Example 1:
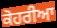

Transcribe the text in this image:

ਕੋਹਰੀਆ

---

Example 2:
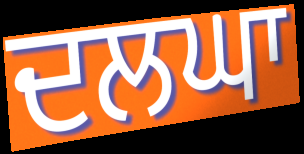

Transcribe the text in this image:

ਦਲਘਾ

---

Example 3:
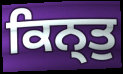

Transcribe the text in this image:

ਕਿਨ੍ਤੁ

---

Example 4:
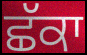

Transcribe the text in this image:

ਛੱਕਾ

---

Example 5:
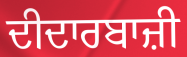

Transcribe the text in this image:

ਦੀਦਾਰਬਾਜ਼ੀ